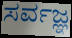
ಸರ್ವಜ್ಞ